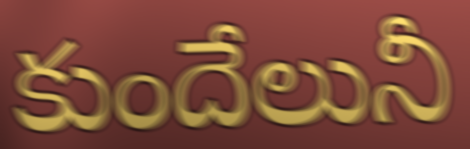
కుందేలునీ